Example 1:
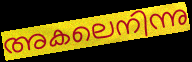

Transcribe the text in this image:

അകലെനിന്നു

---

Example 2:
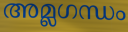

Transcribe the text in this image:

അമ്ലഗന്ധം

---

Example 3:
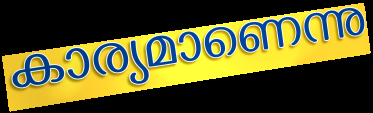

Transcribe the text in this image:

കാര്യമാണെന്നു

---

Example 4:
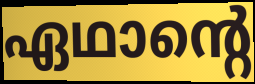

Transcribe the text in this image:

ഏഥാന്റെ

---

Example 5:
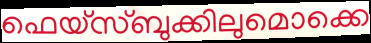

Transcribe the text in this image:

ഫെയ്സ്ബുക്കിലുമൊക്കെ